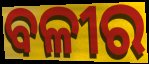
ବଳୀର